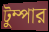
টুম্পার